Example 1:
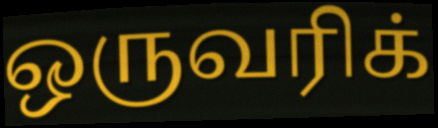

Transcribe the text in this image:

ஒருவரிக்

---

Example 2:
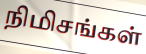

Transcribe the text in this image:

நிமிசங்கள்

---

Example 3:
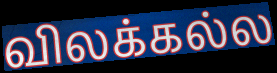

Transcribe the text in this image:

விலக்கல்ல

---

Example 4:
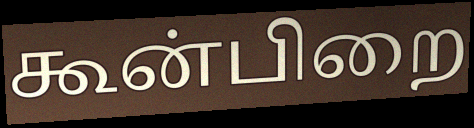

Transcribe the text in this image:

கூன்பிறை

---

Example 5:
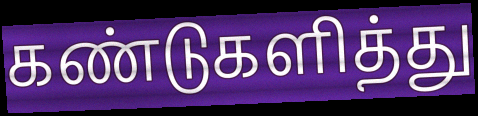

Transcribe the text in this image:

கண்டுகளித்து